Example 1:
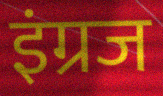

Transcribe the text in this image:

इंग्रज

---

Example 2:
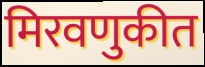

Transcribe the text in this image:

मिरवणुकीत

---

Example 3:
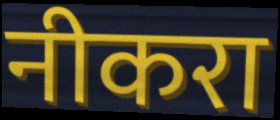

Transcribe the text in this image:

नीकरा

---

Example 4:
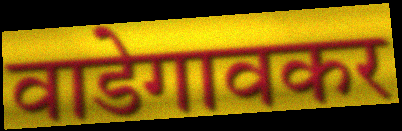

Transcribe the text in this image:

वाडेगावकर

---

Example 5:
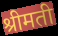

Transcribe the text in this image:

श्रीमती